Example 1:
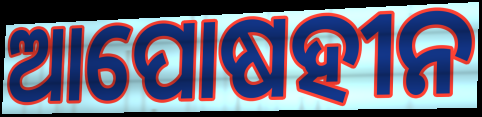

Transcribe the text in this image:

ଆପୋଷହୀନ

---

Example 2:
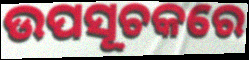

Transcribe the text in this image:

ଉପସୂଚକରେ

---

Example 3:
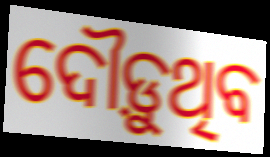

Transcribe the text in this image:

ଦୌଡ଼ୁଥିବ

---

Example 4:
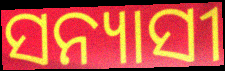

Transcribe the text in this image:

ସନ୍ଯାସୀ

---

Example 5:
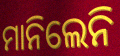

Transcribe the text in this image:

ମାନିଲେନି